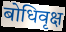
बोधिवृक्ष